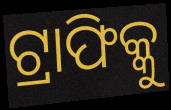
ଟ୍ରାଫିକ୍କୁ